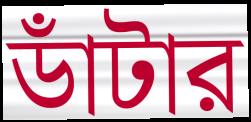
ডাঁটার